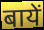
बायें